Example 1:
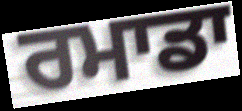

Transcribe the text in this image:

ਰਮਾਡਾ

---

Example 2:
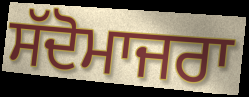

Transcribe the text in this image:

ਸੱਦੋਮਾਜਰਾ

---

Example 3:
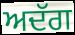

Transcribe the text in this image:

ਅਦੱਗ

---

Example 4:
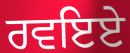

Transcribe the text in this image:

ਰਵਇਏ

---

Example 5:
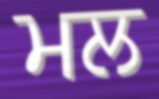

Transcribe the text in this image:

ਮਲ